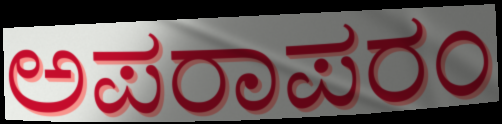
ಅಪರಾಪರಂ